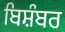
ਬਿਸ਼ੰਬਰ